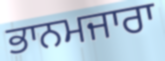
ਭਾਨਮਜਾਰਾ